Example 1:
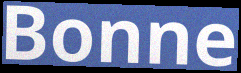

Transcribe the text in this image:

Bonne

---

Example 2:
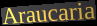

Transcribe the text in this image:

Araucaria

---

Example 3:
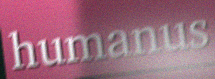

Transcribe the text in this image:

humanus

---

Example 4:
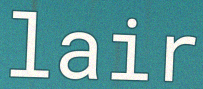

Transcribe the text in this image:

lair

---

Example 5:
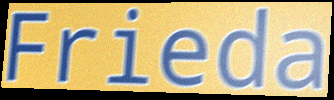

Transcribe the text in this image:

Frieda